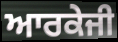
ਆਰਕੇਜੀ